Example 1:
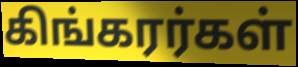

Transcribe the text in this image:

கிங்கரர்கள்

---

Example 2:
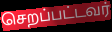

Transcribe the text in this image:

செறப்பட்டவர்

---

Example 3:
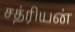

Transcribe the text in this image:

சத்ரியன்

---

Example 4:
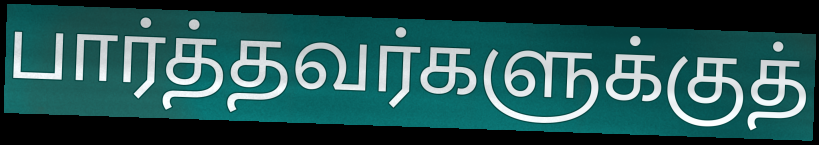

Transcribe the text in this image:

பார்த்தவர்களுக்குத்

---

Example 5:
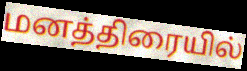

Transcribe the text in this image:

மனத்திரையில்